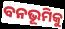
ବନଭୂମିକୁ